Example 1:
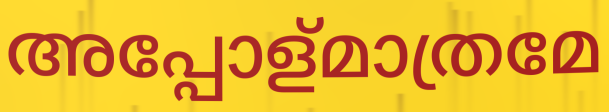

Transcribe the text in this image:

അപ്പോള്മാത്രമേ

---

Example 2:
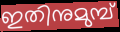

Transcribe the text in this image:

ഇതിനുമുമ്പ്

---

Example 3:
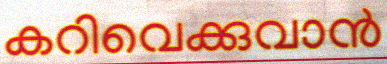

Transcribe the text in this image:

കറിവെക്കുവാൻ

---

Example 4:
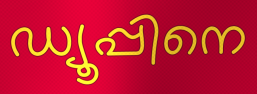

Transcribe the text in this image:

ഡ്യൂപ്പിനെ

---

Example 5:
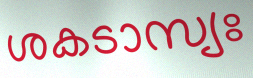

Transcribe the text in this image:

ശകടാസ്യഃ